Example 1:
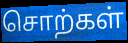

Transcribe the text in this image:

சொற்கள்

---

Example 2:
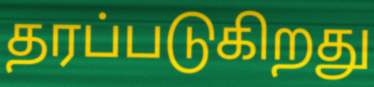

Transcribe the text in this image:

தரப்படுகிறது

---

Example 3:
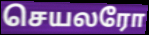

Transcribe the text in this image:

செயலரோ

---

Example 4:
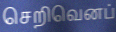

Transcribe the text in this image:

செறிவெனப்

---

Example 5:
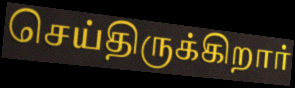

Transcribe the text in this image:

செய்திருக்கிறார்